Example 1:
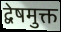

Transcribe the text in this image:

द्वेषमुक्त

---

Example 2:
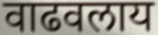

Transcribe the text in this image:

वाढवलाय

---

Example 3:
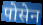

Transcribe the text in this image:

पोसेन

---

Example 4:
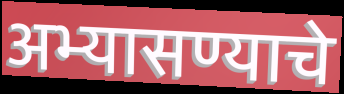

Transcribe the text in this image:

अभ्यासण्याचे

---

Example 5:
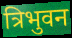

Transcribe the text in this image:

त्रिभुवन